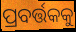
ପ୍ରବର୍ତ୍ତକକୁ